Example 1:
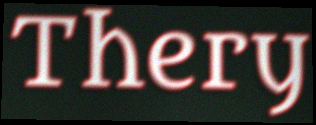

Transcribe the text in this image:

Thery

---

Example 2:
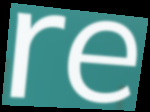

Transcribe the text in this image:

re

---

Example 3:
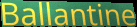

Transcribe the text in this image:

Ballantine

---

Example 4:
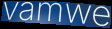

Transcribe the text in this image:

vamwe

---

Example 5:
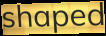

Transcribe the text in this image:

shaped